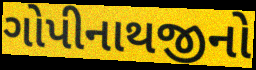
ગોપીનાથજીનો